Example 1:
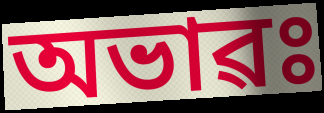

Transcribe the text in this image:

অভাৱঃ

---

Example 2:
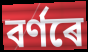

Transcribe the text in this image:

বৰ্ণৰে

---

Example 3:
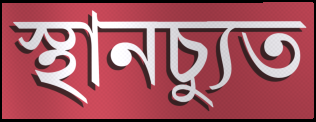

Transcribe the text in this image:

স্থানচ্যুত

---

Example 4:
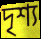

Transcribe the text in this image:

দৃশ্য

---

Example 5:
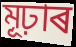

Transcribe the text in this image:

মূঢ়াৰ